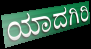
ಯಾದಗಿರಿ